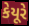
કેયૂરે